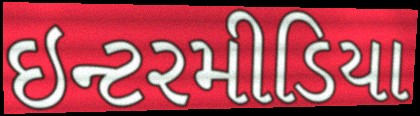
ઇન્ટરમીડિયા